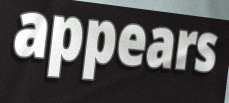
appears